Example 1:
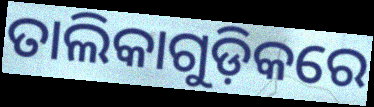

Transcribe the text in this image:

ତାଲିକାଗୁଡ଼ିକରେ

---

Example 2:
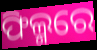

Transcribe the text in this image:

ଫିଲ୍ମରେ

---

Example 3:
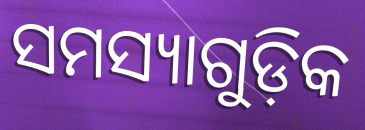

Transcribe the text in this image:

ସମସ୍ୟାଗୁଡ଼ିକ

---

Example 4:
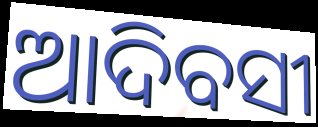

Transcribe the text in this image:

ଆଦିବସୀ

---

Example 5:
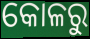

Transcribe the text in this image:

କୋଳରୁ